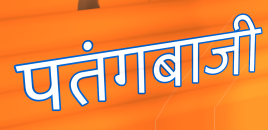
पतंगबाजी